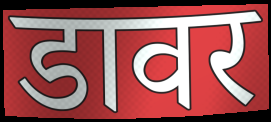
डावर